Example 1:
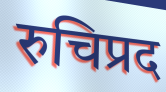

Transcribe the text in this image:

रुचिप्रद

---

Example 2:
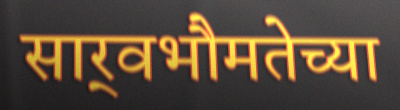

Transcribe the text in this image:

सार्वभौमतेच्या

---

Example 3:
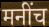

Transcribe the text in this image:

मनींच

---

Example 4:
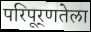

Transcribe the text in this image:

परिपूर्णतेला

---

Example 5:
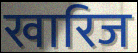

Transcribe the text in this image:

खारिज